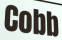
Cobb